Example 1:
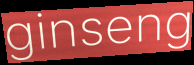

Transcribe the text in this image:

ginseng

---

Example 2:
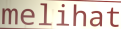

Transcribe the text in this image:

melihat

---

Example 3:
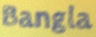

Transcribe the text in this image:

Bangla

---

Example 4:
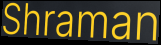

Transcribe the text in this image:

Shraman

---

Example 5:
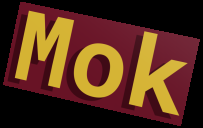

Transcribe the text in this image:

Mok